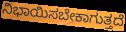
ನಿಭಾಯಿಸಬೇಕಾಗುತ್ತದೆ